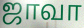
ஜாவா